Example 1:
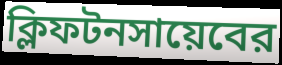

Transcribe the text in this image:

ক্লিফটনসায়েবের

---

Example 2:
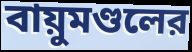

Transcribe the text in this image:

বায়ুমণ্ডলের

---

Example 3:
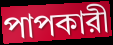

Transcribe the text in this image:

পাপকারী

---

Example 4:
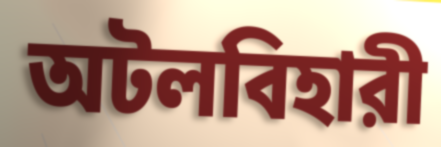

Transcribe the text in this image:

অটলবিহারী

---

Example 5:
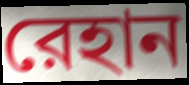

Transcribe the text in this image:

রেহান